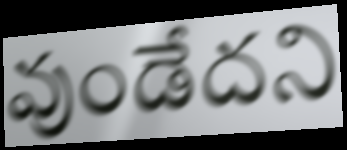
వుండేదని